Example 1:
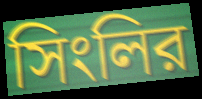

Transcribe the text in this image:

সিংলির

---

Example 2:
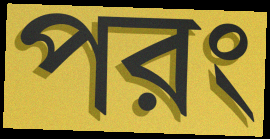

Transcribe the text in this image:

পরং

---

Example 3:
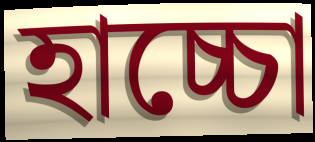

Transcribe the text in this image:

হাচ্চো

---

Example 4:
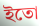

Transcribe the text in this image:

ইতো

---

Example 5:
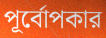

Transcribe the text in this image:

পূর্বোপকার